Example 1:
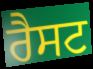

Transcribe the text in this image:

ਰੈਸਟ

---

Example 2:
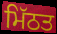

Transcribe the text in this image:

ਮਿੱਠਤ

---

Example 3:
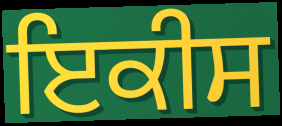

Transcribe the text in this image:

ਇਕੀਸ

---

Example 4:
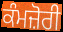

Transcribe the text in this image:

ਕੰਮਜ਼ੋਰੀ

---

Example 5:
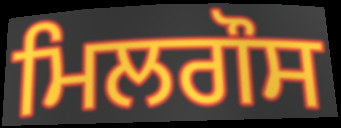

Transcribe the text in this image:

ਮਿਲਗੌਸ